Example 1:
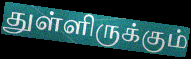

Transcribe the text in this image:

துள்ளிருக்கும்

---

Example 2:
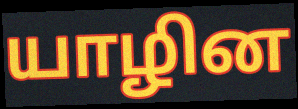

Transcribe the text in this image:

யாழின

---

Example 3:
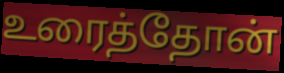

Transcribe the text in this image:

உரைத்தோன்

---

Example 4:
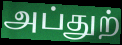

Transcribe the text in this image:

அப்துற்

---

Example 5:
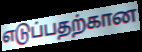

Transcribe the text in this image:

எடுப்பதற்கான